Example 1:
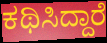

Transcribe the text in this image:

ಕಥಿಸಿದ್ದಾರೆ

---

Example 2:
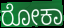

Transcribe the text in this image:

ರೋಕಾ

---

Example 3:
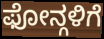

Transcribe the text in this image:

ಫೋನ್ಗಳಿಗೆ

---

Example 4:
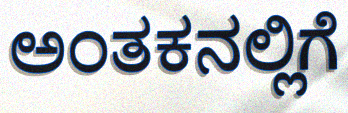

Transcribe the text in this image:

ಅಂತಕನಲ್ಲಿಗೆ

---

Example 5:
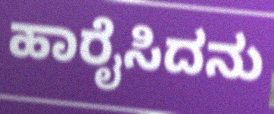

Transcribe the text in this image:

ಹಾರೈಸಿದನು